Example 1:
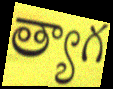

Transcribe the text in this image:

త్యాగ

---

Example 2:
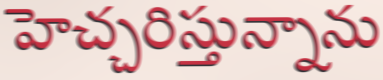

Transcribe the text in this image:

హెచ్చరిస్తున్నాను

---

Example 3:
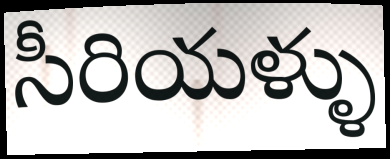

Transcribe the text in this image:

సీరియళ్ళు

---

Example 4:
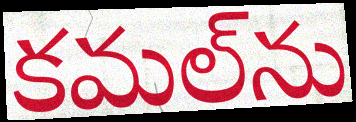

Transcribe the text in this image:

కమల్‌ను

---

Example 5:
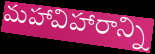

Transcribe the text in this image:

మహావిహారాన్ని